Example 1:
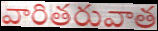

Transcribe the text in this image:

వారితరువాత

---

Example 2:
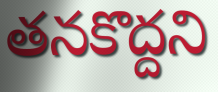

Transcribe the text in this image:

తనకొద్దని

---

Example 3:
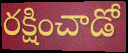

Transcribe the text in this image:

రక్షించాడో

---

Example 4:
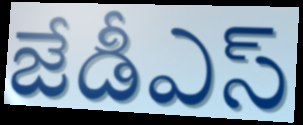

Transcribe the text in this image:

జేడీఎస్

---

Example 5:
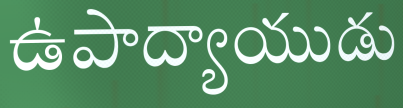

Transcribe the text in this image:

ఉపాద్యాయుడు